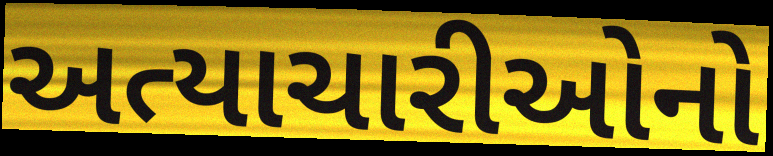
અત્યાચારીઓનો